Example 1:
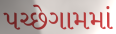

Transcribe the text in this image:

પચ્છેગામમાં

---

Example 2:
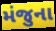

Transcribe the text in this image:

મંજુના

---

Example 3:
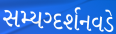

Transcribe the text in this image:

સમ્યગ્દર્શનવડે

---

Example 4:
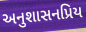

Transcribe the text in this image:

અનુશાસનપ્રિય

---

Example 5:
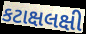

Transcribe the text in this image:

કટાક્ષલક્ષી